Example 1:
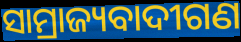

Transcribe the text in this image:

ସାମ୍ରାଜ୍ୟବାଦୀଗଣ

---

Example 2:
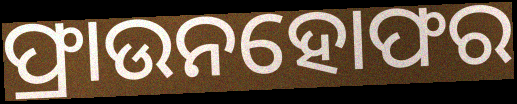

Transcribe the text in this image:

ଫ୍ରାଉନହୋଫର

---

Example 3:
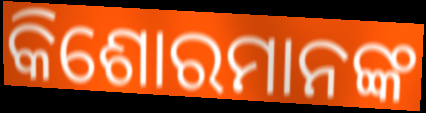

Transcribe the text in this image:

କିଶୋରମାନଙ୍କ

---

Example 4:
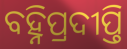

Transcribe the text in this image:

ବହ୍ନିପ୍ରଦୀପ୍ତି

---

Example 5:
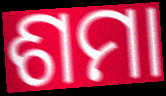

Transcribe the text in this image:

ଶମା